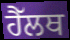
ਹੈੱਲਥ